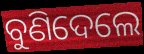
ବୁଣିଦେଲେ